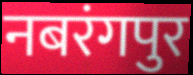
नबरंगपुर